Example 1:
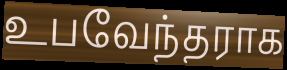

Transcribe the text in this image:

உபவேந்தராக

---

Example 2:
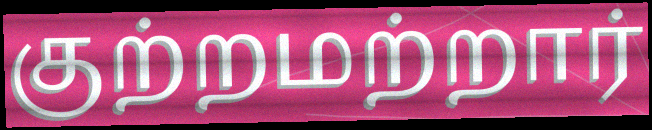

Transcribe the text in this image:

குற்றமற்றார்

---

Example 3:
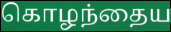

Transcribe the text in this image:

கொழந்தைய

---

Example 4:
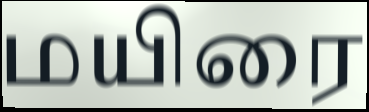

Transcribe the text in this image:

மயிரை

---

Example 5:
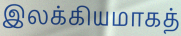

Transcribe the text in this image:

இலக்கியமாகத்